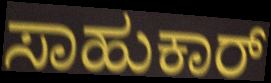
ಸಾಹುಕಾರ್